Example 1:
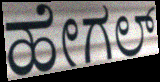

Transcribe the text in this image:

ಹೇಗಲ್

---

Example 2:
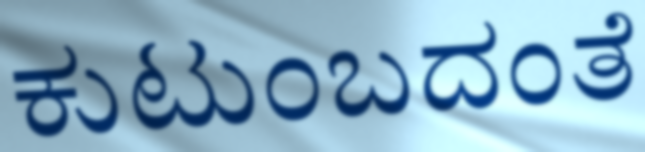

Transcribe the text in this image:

ಕುಟುಂಬದಂತೆ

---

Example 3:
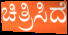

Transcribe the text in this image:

ಚಿತ್ರಿಸಿದೆ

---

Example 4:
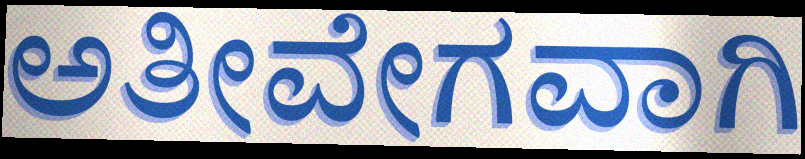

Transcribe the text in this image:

ಅತೀವೇಗವಾಗಿ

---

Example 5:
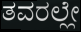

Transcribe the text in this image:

ತವರಲ್ಲೇ